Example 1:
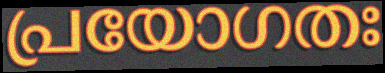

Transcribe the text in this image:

പ്രയോഗതഃ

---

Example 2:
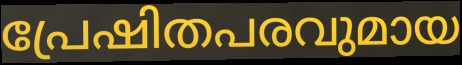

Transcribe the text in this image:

പ്രേഷിതപരവുമായ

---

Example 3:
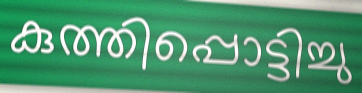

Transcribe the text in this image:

കുത്തിപ്പൊട്ടിച്ചു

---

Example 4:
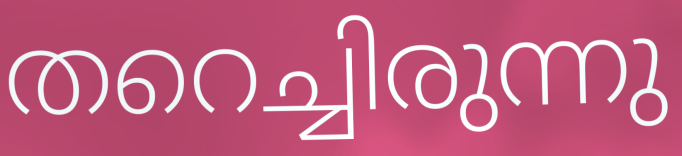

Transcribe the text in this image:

തറെച്ചിരുന്നു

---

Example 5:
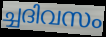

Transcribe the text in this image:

ച്ചദിവസം